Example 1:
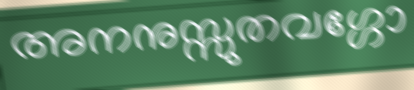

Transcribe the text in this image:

അനനുസ്സുതവഗ്ഗോ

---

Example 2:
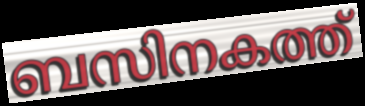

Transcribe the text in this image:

ബസിനകത്ത്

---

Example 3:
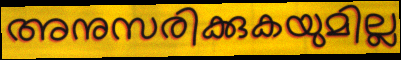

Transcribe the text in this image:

അനുസരിക്കുകയുമില്ല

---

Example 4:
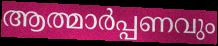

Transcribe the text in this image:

ആത്മാർപ്പണവും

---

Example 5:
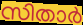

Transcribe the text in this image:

സിതാർ